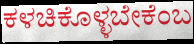
ಕಳಚಿಕೊಳ್ಳಬೇಕೆಂಬ